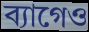
ব্যাগেও